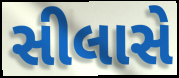
સીલાસે